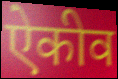
ऐकीव